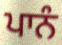
ਪਾਨੰ